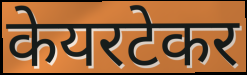
केयरटेकर